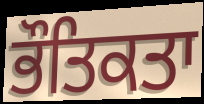
ਭੌਤਿਕਤਾ